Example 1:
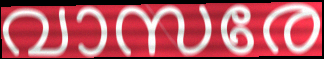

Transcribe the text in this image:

വാസരേ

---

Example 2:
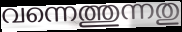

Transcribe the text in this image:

വന്നെത്തുന്നതു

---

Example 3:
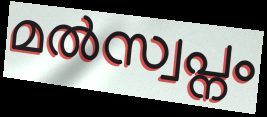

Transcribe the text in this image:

മൽസ്വപ്നം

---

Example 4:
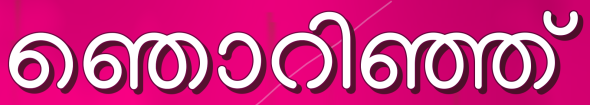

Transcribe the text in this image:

ഞൊറിഞ്ഞ്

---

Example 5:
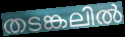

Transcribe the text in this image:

തടങ്കലിൽ